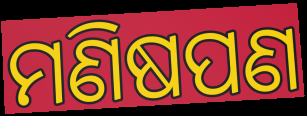
ମଣିଷପଣ